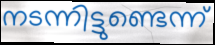
നടന്നിട്ടുണ്ടെന്ന്